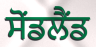
ਸੋਂਡਲੈਂਡ